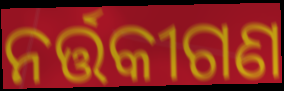
ନର୍ତ୍ତକୀଗଣ